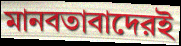
মানবতাবাদেরই